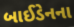
બાઈડેનના